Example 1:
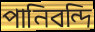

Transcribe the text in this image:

পানিবন্দি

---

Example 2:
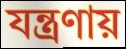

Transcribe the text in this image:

যন্ত্রণায়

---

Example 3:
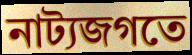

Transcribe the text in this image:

নাট্যজগতে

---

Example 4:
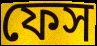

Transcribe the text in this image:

ফেস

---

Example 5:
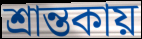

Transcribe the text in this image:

শ্রান্তকায়